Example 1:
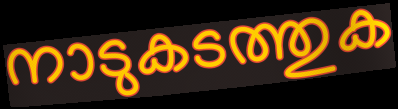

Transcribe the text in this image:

നാടുകടത്തുക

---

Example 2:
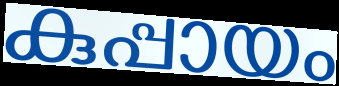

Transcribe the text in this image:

കുപ്പായം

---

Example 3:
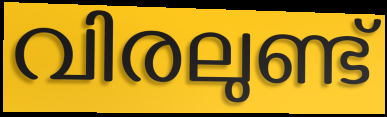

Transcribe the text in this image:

വിരലുണ്ട്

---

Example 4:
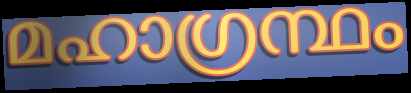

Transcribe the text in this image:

മഹാഗ്രന്ഥം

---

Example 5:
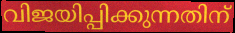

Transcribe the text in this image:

വിജയിപ്പിക്കുന്നതിന്